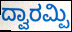
ದ್ವಾರಮ್ಪಿ